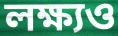
লক্ষ্যও